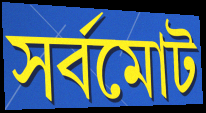
সর্বমোট